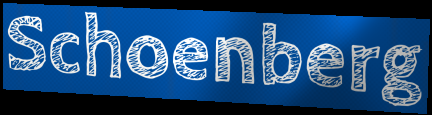
Schoenberg